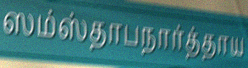
ஸம்ஸ்தாபநார்த்தாய